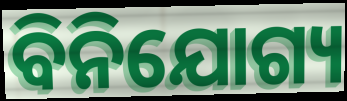
ବିନିଯୋଗ୍ୟ